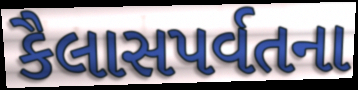
કૈલાસપર્વતના